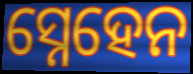
ସ୍ନେହେନ